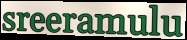
sreeramulu